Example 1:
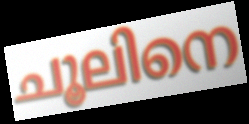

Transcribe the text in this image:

ചൂലിനെ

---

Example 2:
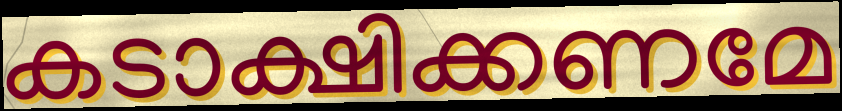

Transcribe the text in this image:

കടാക്ഷിക്കണമേ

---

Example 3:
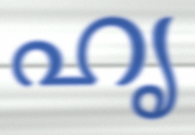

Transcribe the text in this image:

ഹൃ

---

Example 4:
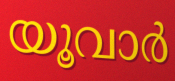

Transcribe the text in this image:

യൂവാർ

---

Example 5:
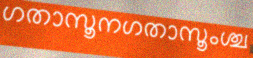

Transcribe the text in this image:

ഗതാസൂനഗതാസൂംശ്ച